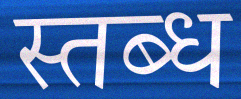
स्तब्ध